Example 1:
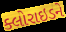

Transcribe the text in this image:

ક્લોરાઇડને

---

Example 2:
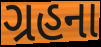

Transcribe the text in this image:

ગ્રહના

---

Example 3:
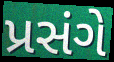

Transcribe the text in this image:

પ્રસંગે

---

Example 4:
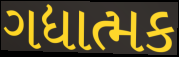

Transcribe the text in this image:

ગદ્યાત્મક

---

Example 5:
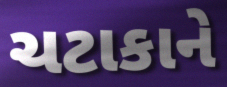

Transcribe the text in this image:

ચટાકાને